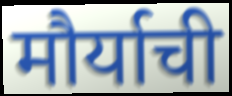
मौर्याची